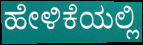
ಹೇಳಿಕೆಯಲ್ಲಿ